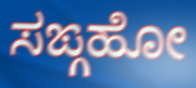
ಸಙ್ಗಹೋ